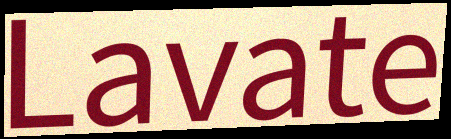
Lavate